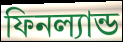
ফিনল্যান্ড